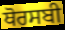
ਥੋਰਸਬੀ